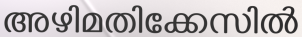
അഴിമതിക്കേസിൽ